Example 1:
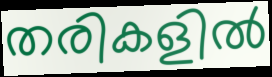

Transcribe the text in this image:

തരികളിൽ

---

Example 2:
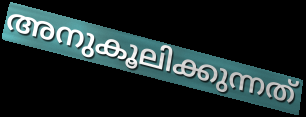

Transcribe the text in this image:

അനുകൂലിക്കുന്നത്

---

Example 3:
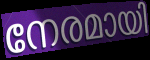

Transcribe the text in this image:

നേരമായി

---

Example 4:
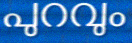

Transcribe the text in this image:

പുറവും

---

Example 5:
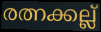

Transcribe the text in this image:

രത്നക്കല്ല്